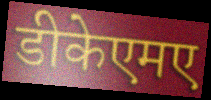
डीकेएमए